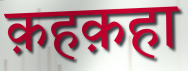
क़हक़हा